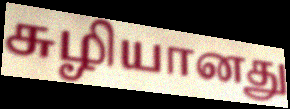
சுழியானது